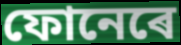
ফোনেৰে